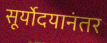
सूर्योदयानंतर